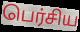
பெர்சிய